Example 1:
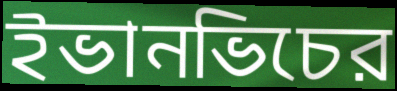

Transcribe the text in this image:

ইভানভিচের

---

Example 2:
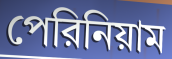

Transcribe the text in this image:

পেরিনিয়াম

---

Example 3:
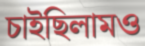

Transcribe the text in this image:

চাইছিলামও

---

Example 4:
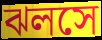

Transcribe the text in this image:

ঝলসে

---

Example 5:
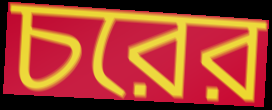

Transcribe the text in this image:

চরের